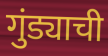
गुंड्याची